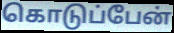
கொடுப்பேன்